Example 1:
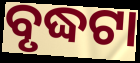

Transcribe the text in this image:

ବୃଦ୍ଧଟା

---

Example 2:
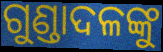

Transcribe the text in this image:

ଗୁଣ୍ଡାଦଳଙ୍କୁ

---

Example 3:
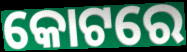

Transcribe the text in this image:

କୋଟରେ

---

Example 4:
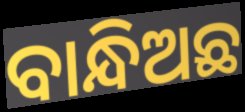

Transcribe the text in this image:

ବାନ୍ଧିଅଛ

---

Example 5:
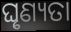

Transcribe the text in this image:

ଘୃଣ୍ୟତା